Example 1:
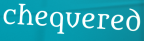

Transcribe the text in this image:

chequered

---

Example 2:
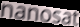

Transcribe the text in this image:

nanosat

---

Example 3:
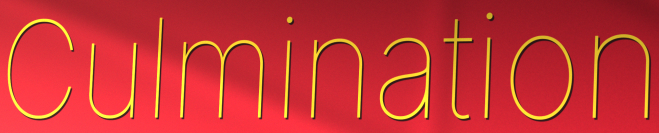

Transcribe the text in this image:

Culmination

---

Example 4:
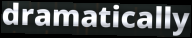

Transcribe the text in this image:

dramatically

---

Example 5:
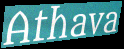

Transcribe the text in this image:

Athava